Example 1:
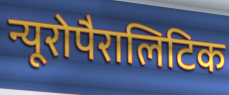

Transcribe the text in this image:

न्यूरोपैरालिटिक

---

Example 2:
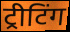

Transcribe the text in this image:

ट्रीटिंग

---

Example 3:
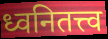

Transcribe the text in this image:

ध्वनितत्त्व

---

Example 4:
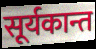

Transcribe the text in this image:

सूर्यकान्त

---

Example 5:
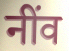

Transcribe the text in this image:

नींव